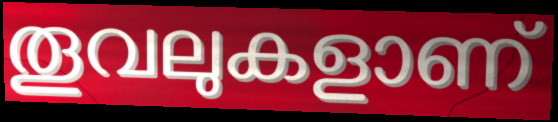
തൂവലുകളാണ്